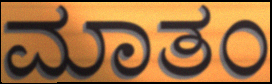
ಮಾತಂ